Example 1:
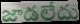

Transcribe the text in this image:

జాడలేదు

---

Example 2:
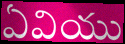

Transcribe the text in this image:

ఏవియు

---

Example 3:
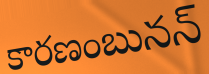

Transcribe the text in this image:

కారణంబునన్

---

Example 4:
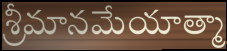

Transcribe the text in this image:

శ్రీమానమేయాత్మా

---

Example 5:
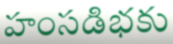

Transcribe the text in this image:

హంసడిభకు